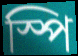
স্পি